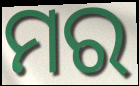
ମର